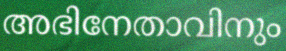
അഭിനേതാവിനും